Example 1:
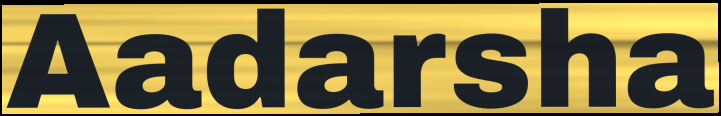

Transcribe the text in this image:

Aadarsha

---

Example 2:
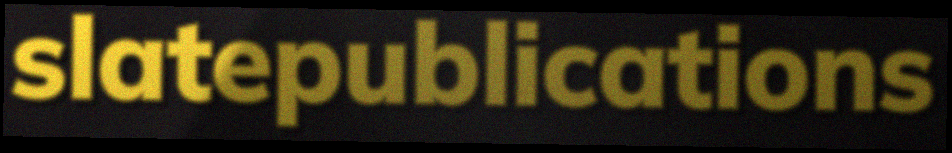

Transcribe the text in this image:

slatepublications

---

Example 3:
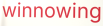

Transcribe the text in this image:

winnowing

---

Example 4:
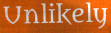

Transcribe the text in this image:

Unlikely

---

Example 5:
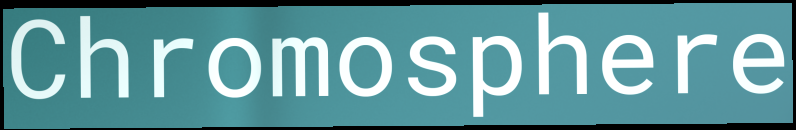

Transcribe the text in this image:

Chromosphere